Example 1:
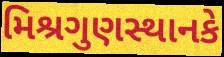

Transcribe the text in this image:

મિશ્રગુણસ્થાનકે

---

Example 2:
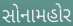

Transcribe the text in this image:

સોનામહોર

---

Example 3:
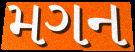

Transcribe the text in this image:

મગન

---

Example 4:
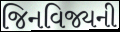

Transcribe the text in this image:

જિનવિજ્યની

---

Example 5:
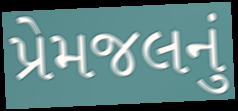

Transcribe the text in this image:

પ્રેમજલનું